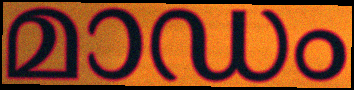
മാഡം